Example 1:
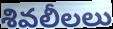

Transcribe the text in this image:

శివలీలలు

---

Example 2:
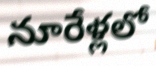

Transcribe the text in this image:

నూరేళ్లలో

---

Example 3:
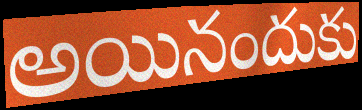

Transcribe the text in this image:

అయినందుకు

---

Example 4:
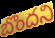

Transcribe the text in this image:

బొందని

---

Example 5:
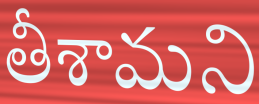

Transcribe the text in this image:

తీశామని